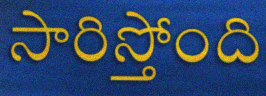
సారిస్తోంది